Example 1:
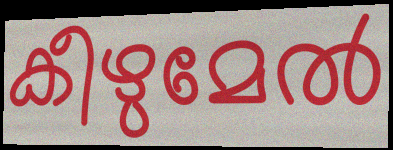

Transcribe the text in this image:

കീഴുമേൽ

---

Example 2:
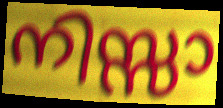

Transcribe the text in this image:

നിസ്സാ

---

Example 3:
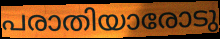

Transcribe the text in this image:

പരാതിയാരോടു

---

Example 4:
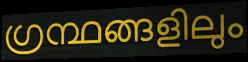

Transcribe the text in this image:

ഗ്രന്ഥങ്ങളിലും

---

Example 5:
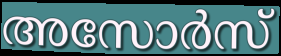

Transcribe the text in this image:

അസോർസ്